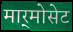
मार्मोसेट